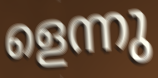
ളെന്നു